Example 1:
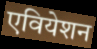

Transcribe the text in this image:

एवियेशन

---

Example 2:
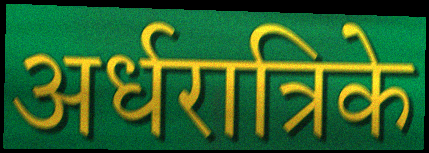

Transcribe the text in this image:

अर्धरात्रिके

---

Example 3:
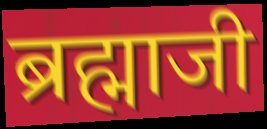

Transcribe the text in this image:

ब्रह्माजी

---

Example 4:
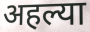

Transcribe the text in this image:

अहल्या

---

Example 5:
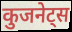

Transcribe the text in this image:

कुजनेट्स